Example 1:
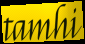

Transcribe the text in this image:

tamhi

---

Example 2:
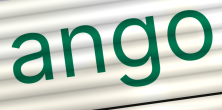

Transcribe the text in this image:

ango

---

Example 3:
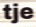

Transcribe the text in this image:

tje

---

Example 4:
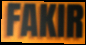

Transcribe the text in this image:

FAKIR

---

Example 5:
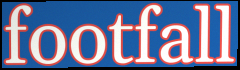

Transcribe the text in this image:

footfall